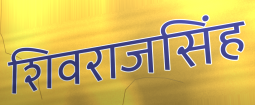
शिवराजसिंह